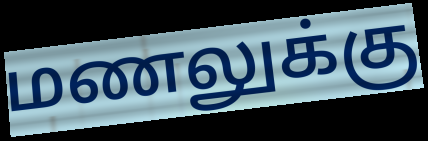
மணலுக்கு